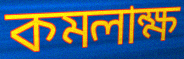
কমলাক্ষ